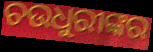
ଚଉଧୁରୀଙ୍କର